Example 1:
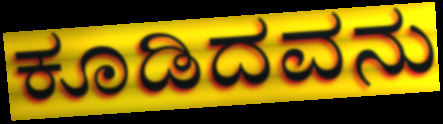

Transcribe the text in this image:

ಕೂಡಿದವನು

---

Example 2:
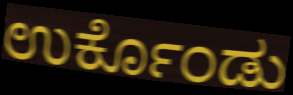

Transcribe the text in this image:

ಉರ್ಕೊಂಡು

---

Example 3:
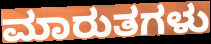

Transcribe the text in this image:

ಮಾರುತಗಳು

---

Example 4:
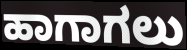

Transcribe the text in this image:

ಹಾಗಾಗಲು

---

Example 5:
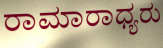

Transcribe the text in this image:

ರಾಮಾರಾಧ್ಯರು